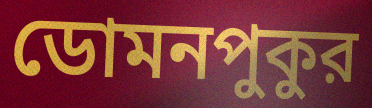
ডোমনপুকুর